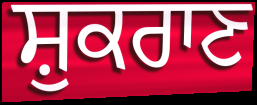
ਸ਼ੁਕਰਾਣ